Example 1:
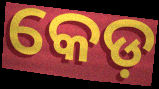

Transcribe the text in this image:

କେଡ଼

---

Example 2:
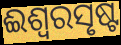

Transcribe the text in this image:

ଈଶ୍ୱରସୃଷ୍ଟ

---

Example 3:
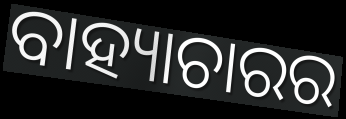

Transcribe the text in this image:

ବାହ୍ୟାଚାରର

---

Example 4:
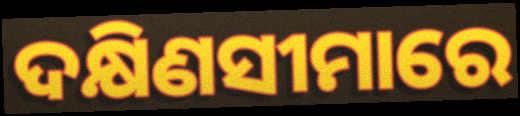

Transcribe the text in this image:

ଦକ୍ଷିଣସୀମାରେ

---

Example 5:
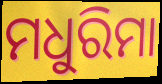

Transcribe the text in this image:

ମଧୁରିମା